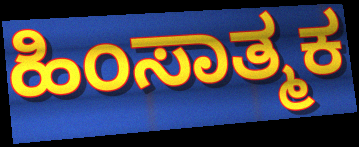
ಹಿಂಸಾತ್ಮಕ